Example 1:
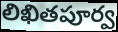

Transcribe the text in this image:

లిఖితపూర్వ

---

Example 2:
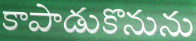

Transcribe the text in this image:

కాపాడుకొనును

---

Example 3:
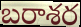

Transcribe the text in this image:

బరాశర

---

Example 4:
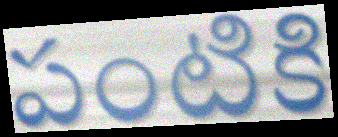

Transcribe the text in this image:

పంటికి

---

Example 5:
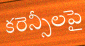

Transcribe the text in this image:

కరెన్సీలపై